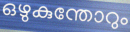
ഒഴുകുന്തോറും